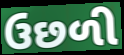
ઉછળી